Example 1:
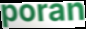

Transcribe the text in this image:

poran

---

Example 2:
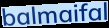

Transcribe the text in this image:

balmaifal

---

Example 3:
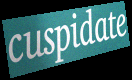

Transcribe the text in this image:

cuspidate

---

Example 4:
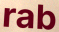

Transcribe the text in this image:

rab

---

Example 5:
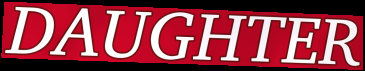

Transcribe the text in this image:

DAUGHTER